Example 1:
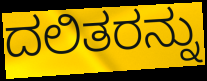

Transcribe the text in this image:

ದಲಿತರನ್ನು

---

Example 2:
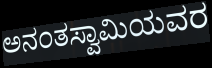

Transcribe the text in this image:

ಅನಂತಸ್ವಾಮಿಯವರ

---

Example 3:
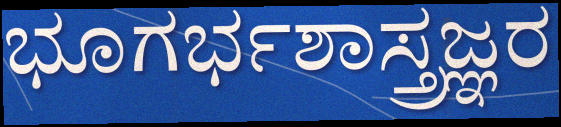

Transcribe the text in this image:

ಭೂಗರ್ಭಶಾಸ್ತ್ರಜ್ಞರ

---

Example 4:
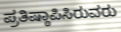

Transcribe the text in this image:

ಪ್ರತಿಷ್ಠಾಪಿಸಿರುವರು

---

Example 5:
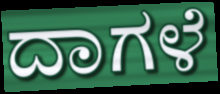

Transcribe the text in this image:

ದಾಗಳೆ